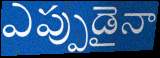
ఎప్పుడైనా